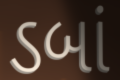
ડબાં